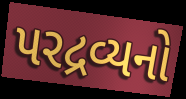
પરદ્રવ્યનો